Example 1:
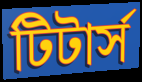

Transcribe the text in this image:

টিটার্স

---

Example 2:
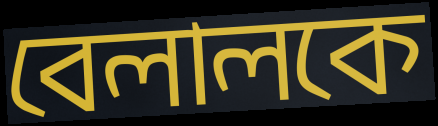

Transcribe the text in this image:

বেলালকে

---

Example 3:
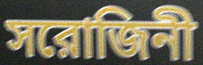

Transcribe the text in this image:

সরোজিনী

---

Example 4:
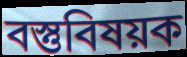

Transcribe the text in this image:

বস্তুবিষয়ক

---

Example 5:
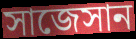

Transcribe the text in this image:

সাজেসান